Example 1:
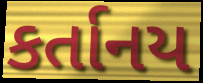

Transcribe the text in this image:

કર્તાનય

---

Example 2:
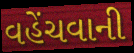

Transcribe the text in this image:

વહેંચવાની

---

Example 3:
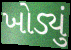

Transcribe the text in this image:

ખોડ્યું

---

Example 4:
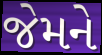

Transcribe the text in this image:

જેમને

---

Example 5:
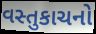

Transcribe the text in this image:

વસ્તુકાચનો